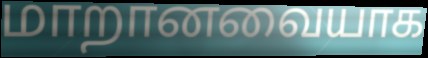
மாறானவையாக